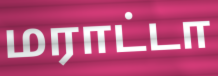
மராட்டா